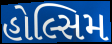
હોલ્સિમ